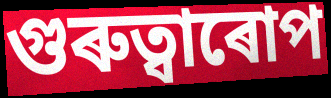
গুৰুত্বাৰোপ